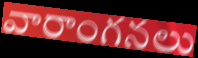
వారాంగనలు